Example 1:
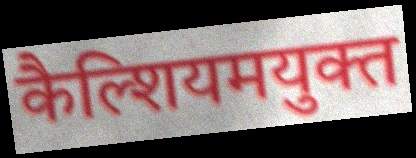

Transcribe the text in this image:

कैल्शियमयुक्त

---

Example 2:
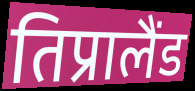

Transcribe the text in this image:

तिप्रालैंड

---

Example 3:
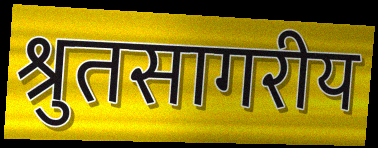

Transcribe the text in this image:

श्रुतसागरीय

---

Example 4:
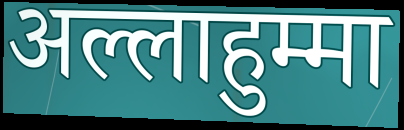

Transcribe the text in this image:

अल्लाहुम्मा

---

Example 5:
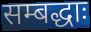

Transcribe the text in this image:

सम्बद्धाः